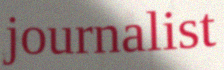
journalist